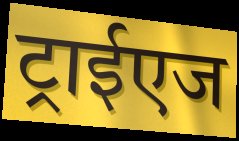
ट्राईएज